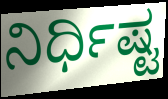
ನಿರ್ಧಿಷ್ಟ